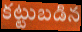
కట్టుబడిన